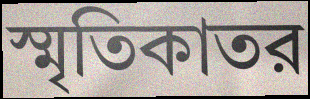
স্মৃতিকাতর